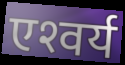
एश्वर्य